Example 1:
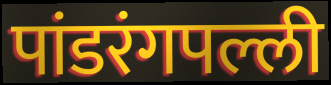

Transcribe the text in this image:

पांडरंगपल्ली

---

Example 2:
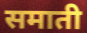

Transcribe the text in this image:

समाती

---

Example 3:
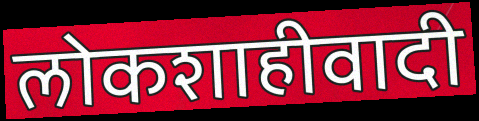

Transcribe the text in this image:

लोकशाहीवादी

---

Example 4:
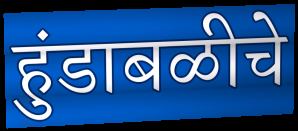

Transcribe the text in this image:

हुंडाबळीचे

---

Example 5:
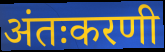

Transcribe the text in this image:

अंतःकरणी